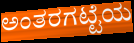
ಅಂತರಗಟ್ಟೆಯ